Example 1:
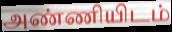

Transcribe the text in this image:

அண்ணியிடம்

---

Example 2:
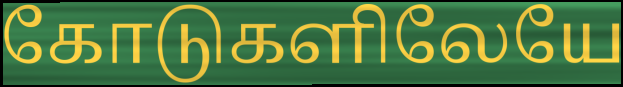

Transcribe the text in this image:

கோடுகளிலேயே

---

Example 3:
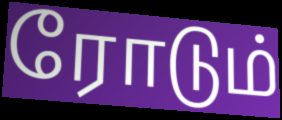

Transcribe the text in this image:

ரோடும்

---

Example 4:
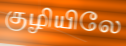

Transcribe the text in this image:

குழியிலே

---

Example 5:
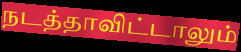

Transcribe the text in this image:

நடத்தாவிட்டாலும்